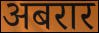
अबरार